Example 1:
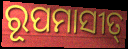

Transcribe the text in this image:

ରୂପମାସୀତ୍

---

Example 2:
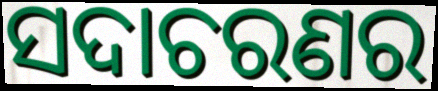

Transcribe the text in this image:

ସଦାଚରଣର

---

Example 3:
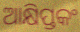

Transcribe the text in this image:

ଆକ୍ଷିପ୍ତକଂ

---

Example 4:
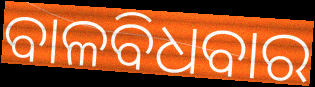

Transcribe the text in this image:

ବାଳବିଧବାର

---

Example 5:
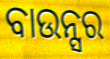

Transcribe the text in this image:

ବାଉନ୍ସର